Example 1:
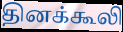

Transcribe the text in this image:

தினக்கூலி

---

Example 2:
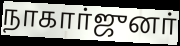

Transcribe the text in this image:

நாகார்ஜுனர்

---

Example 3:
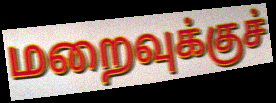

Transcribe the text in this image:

மறைவுக்குச்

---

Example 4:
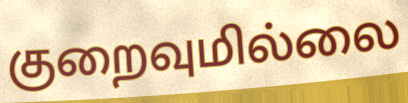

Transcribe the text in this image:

குறைவுமில்லை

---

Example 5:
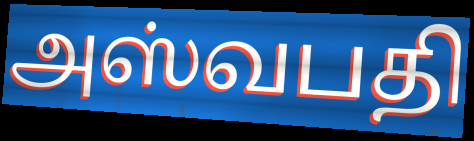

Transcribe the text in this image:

அஸ்வபதி